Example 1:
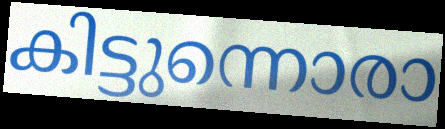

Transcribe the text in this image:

കിട്ടുന്നൊരാ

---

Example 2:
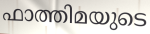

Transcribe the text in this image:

ഫാത്തിമയുടെ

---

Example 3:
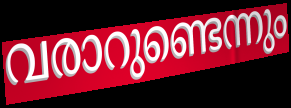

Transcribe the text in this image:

വരാറുണ്ടെന്നും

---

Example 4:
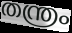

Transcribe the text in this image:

തന്ത്രം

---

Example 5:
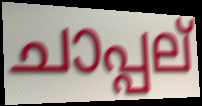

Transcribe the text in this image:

ചാപ്പല്